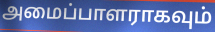
அமைப்பாளராகவும்